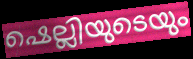
ഷെല്ലിയുടെയും